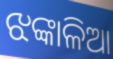
ଝଙ୍କାଳିଆ